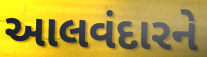
આલવંદારને